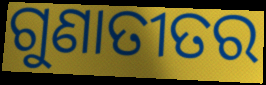
ଗୁଣାତୀତର